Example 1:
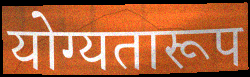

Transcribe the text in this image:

योग्यतारूप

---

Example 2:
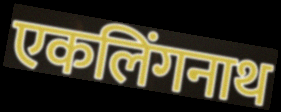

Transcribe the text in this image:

एकलिंगनाथ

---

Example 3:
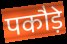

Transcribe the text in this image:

पकौड़े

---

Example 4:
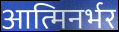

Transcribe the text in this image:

आत्मिनर्भर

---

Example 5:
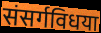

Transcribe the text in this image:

संसर्गविधया